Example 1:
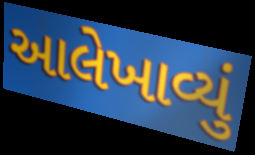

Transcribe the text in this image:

આલેખાવ્યું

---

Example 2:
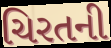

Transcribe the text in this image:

ચિરતની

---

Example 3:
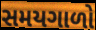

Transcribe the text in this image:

સમયગાળો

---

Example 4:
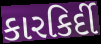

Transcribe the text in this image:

કારકિર્દી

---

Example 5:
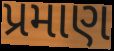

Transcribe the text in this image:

પ્રમાણ